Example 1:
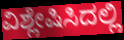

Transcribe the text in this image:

ವಿಶ್ಲೇಷಿಸಿದಲ್ಲಿ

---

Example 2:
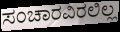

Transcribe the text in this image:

ಸಂಚಾರವಿರಲಿಲ್ಲ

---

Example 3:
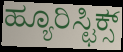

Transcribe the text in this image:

ಹ್ಯೂರಿಸ್ಟಿಕ್ಸ್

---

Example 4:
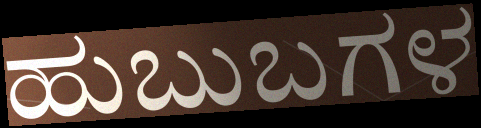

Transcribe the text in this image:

ಹುಬುಬಗಳ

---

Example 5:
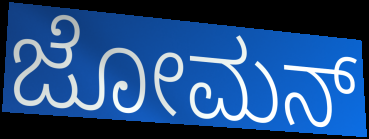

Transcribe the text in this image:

ಜೋಮನ್